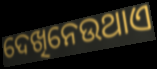
ଦେଖିନେଉଥାଏ